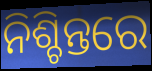
ନିଶ୍ଚିନ୍ତରେ